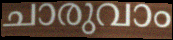
ചാരുവാം